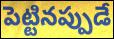
పెట్టినప్పుడే